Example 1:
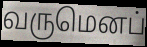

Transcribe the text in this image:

வருமெனப்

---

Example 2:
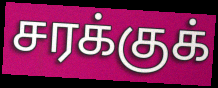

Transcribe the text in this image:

சரக்குக்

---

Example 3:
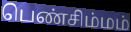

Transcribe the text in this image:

பெண்சிம்மம்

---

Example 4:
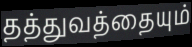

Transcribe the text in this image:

தத்துவத்தையும்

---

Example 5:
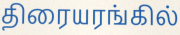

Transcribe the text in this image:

திரையரங்கில்